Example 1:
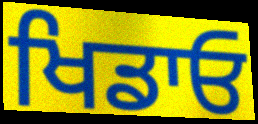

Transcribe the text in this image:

ਖਿਡਾਓ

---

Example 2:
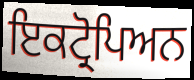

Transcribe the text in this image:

ਇਕਟ੍ਰੋਪਿਅਨ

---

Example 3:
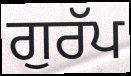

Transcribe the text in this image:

ਗੁਰੱਪ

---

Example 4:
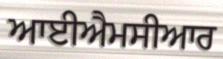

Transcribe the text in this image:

ਆਈਐਮਸੀਆਰ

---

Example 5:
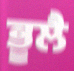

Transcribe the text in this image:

ਭੂਲੈ